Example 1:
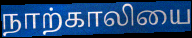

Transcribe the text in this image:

நாற்காலியை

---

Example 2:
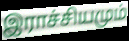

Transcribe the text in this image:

இராச்சியமும்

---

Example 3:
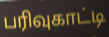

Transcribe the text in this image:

பரிவுகாட்டி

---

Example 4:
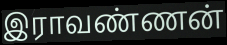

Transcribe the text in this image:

இராவண்ணன்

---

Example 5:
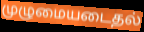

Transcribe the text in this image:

முழுமையடைதல்